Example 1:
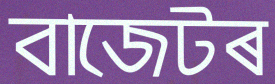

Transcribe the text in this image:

বাজেটৰ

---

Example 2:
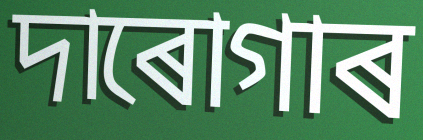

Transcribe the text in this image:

দাৰোগাৰ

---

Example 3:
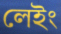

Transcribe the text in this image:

লেইং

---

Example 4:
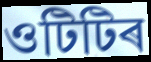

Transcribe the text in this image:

ওটিটিৰ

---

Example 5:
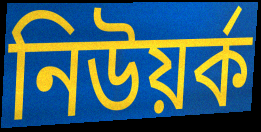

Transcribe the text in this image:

নিউয়ৰ্ক